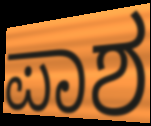
ಪಾಶ